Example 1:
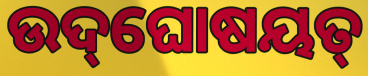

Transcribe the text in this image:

ଉଦ୍‌ଘୋଷୟତ୍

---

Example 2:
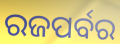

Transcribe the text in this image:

ରଜପର୍ବର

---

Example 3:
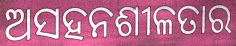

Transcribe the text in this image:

ଅସହନଶୀଳତାର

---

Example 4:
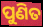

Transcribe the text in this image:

ପୁଣିତ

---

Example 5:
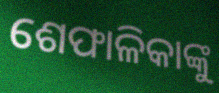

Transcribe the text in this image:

ଶେଫାଳିକାଙ୍କୁ